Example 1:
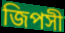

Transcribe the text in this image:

জিপসী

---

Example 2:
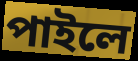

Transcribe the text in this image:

পাইলে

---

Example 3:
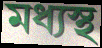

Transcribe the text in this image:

মধ্যস্থ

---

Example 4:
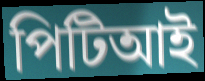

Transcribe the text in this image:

পিটিআই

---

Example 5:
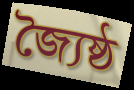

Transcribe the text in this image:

জ্যৈষ্ঠ